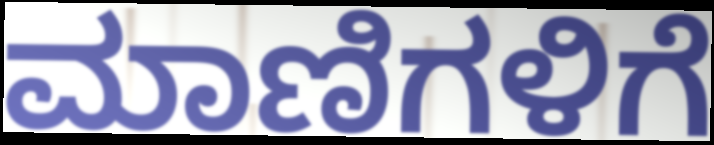
ಮಾಣಿಗಳಿಗೆ